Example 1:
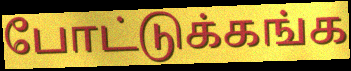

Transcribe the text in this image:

போட்டுக்கங்க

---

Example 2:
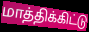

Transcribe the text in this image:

மாத்திக்கிட்டு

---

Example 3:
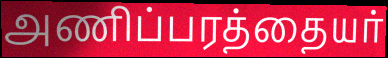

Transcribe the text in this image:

அணிப்பரத்தையர்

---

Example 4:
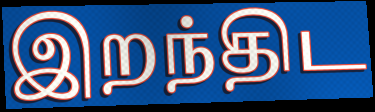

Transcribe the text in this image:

இறந்திட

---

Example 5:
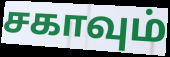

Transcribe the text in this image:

சகாவும்